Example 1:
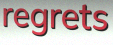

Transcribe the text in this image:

regrets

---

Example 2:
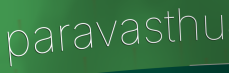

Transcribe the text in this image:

paravasthu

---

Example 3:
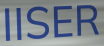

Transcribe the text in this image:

IISER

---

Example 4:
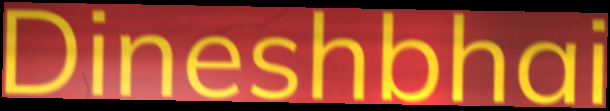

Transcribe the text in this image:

Dineshbhai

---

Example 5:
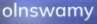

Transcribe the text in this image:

olnswamy